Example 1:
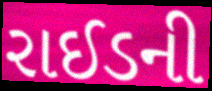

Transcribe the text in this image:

રાઈડની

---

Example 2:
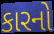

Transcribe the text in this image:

કારનો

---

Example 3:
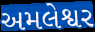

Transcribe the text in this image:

અમલેશ્વર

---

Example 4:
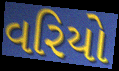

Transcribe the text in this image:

વરિયો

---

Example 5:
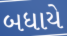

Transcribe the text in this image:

બધાયે